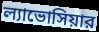
ল্যাভোসিয়ার